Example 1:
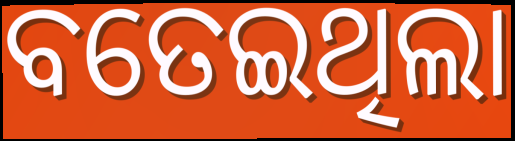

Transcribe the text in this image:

ବତେଇଥିଲା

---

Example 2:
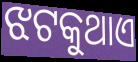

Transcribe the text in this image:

ଝଟକୁଥାଏ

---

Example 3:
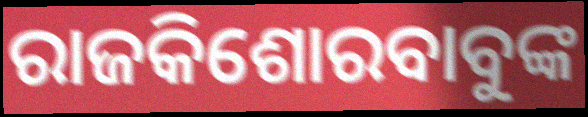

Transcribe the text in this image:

ରାଜକିଶୋରବାବୁଙ୍କ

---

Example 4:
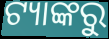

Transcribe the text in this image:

ଟ୍ୟାଙ୍କରୁ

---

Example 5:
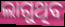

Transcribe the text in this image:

ଲାଗୁଥିବ